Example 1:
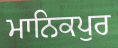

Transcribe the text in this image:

ਮਾਨਿਕਪੁਰ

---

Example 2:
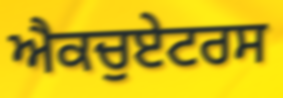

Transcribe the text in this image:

ਐਕਚੁਏਟਰਸ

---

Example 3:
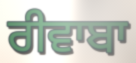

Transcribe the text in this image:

ਰੀਵਾਬਾ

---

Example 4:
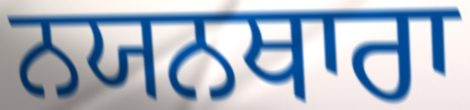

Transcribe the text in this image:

ਨਯਨਥਾਰਾ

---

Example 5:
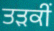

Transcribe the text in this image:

ਤੜਕੀਂ